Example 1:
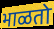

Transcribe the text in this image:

भाळतो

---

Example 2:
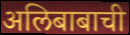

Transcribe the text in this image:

अलिबाबाची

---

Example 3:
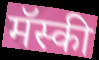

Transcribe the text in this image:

मॅस्की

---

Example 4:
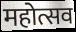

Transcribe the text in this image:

महोत्सव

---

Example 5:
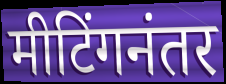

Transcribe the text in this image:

मीटिंगनंतर